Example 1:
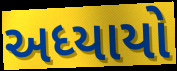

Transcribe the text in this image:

અધ્યાયો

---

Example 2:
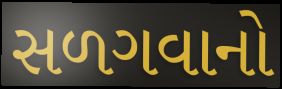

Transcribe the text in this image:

સળગવાનો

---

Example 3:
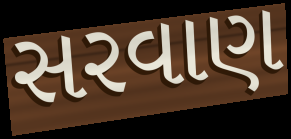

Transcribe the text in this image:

સરવાણ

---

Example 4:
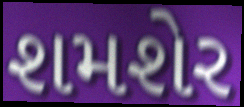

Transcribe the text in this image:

શમશેર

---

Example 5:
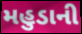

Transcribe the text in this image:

મહુડાની